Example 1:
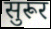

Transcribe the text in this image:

सुरूर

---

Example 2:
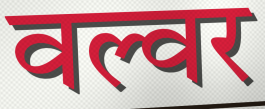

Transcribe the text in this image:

वल्वर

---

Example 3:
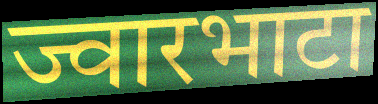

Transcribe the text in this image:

ज्वारभाटा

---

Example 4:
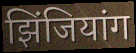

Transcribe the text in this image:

झिंजियांग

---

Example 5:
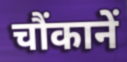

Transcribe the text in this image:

चौंकानें